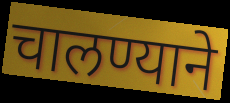
चालण्याने